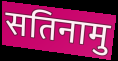
सतिनामु